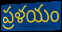
ప్రళయం